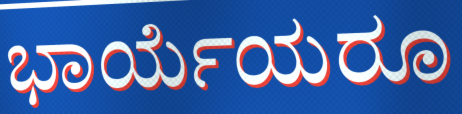
ಭಾರ್ಯೆಯರೂ